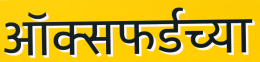
ऑक्सफर्डच्या